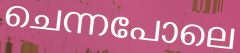
ചെന്നപോലെ